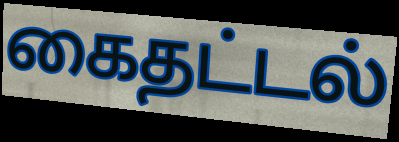
கைதட்டல்